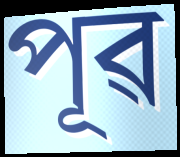
পূৱ